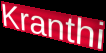
Kranthi